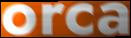
orca